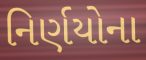
નિર્ણયોના